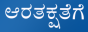
ಆರತಕ್ಷತೆಗೆ